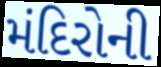
મંદિરોની